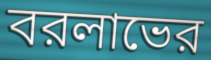
বরলাভের